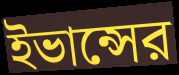
ইভান্সের